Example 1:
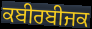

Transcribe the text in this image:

ਕਬੀਰਬੀਜਕ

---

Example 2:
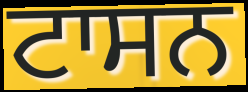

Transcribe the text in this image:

ਟਾਸਨ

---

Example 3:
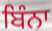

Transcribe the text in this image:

ਬਿੰਨਾ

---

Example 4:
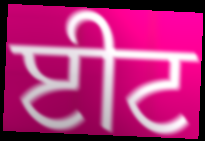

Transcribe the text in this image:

ਈਟ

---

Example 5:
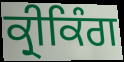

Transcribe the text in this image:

ਕ੍ਰੀਕਿੰਗ